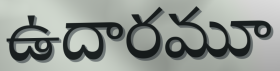
ఉదారమూ